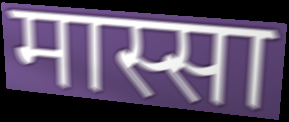
मास्सा